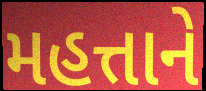
મહત્તાને